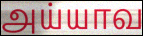
அய்யாவ